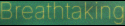
Breathtaking